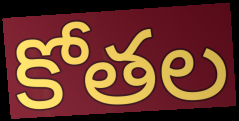
కోతల